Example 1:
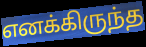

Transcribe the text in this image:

எனக்கிருந்த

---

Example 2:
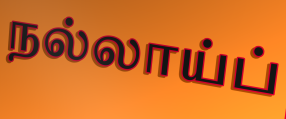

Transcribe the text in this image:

நல்லாய்ப்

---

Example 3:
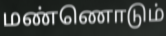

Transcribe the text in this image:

மண்ணொடும்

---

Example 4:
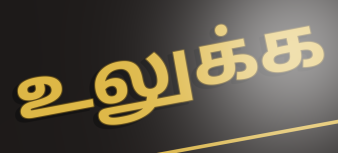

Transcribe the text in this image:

உலுக்க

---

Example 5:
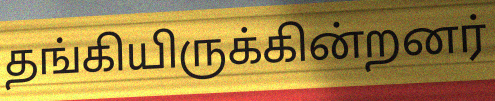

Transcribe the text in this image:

தங்கியிருக்கின்றனர்